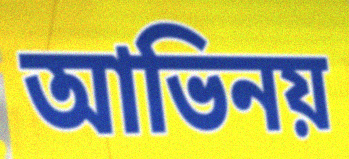
আভিনয়